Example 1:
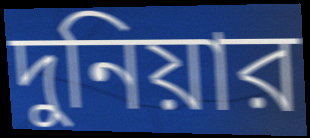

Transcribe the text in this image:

দুনিয়ার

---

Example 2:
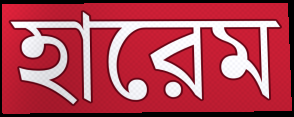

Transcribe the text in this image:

হারেম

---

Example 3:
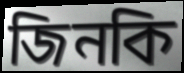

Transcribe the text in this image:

জিনকি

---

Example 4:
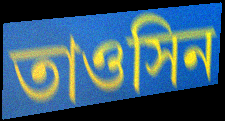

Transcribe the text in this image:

তাওসিন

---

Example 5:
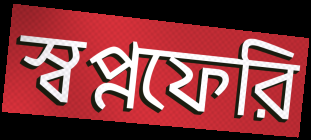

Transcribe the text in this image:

স্বপ্নফেরি